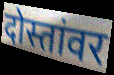
दोस्तांवर